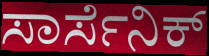
ಸಾರ್ಸೆನಿಕ್